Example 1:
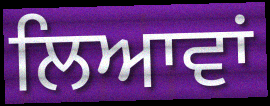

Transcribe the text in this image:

ਲਿਆਵਾਂ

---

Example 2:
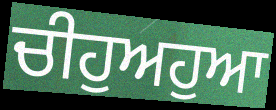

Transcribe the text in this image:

ਚੀਹੁਅਹੁਆ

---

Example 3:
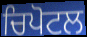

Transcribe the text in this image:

ਚਿਪੋਟਲ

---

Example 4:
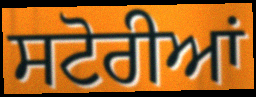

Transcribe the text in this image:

ਸਟੋਰੀਆਂ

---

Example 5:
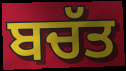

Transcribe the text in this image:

ਬਚੱਤ